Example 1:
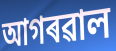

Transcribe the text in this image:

আগৰৱাল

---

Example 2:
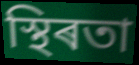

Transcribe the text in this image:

স্থিৰতা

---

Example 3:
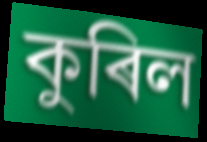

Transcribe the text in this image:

কুৰিল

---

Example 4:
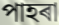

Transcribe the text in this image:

পাহৰা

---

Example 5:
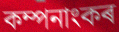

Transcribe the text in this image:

কম্পনাংকৰ